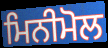
ਮਿਨੀਮੋਲ